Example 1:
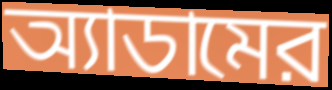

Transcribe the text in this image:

অ্যাডামের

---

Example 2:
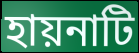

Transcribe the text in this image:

হায়নাটি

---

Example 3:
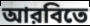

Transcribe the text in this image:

আরবিতে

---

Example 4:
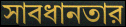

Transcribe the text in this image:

সাবধানতার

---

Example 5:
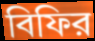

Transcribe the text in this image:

বিফির